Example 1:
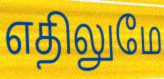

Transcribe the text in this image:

எதிலுமே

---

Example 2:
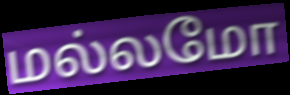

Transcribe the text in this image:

மல்லமோ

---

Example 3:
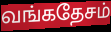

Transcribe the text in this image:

வங்கதேசம்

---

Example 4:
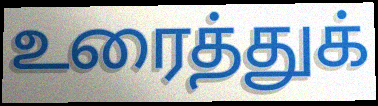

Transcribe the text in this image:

உரைத்துக்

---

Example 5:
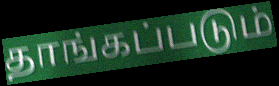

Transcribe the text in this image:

தாங்கப்படும்